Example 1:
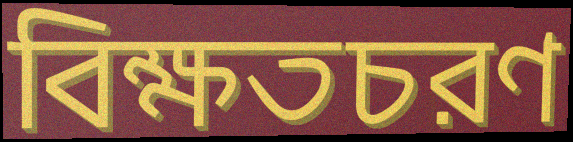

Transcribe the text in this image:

বিক্ষতচরণ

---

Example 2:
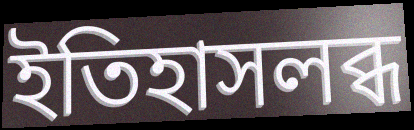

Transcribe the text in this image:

ইতিহাসলব্ধ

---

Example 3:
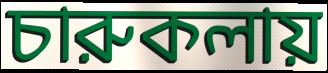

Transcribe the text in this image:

চারুকলায়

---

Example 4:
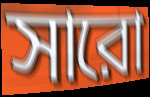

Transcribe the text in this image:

সারো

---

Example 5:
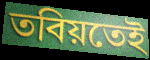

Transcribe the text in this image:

তবিয়তেই